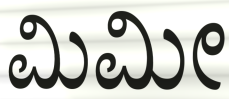
ಮಿಮೀ